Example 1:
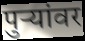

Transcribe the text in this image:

पुऱ्यांवर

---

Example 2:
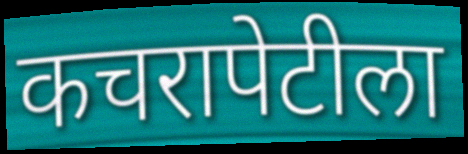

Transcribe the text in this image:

कचरापेटीला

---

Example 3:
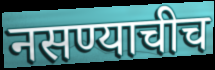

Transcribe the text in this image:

नसण्याचीच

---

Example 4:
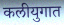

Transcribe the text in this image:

कलीयुगात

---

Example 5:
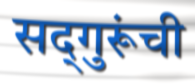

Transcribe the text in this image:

सद्‌गुरूंची